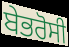
ਬੇਭਰੋਸੀ